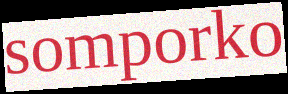
somporko